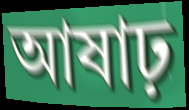
আষাঢ়